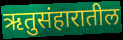
ऋतुसंहारातील